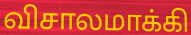
விசாலமாக்கி